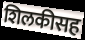
शिलकीसह